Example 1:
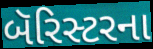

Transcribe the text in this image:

બૅરિસ્ટરના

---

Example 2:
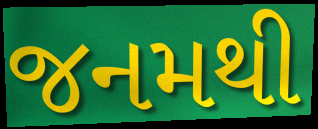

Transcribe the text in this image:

જનમથી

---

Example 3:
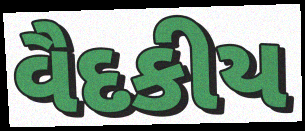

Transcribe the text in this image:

વૈદકીય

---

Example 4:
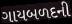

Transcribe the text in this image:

ગાયબળદની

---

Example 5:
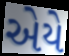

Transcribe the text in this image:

એયે